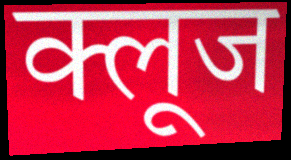
क्लूज